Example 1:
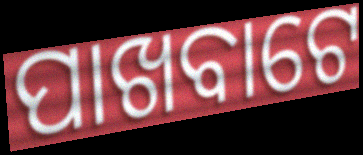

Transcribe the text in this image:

ପାଖବାଟେ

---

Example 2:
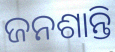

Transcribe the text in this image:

ଜନଶାନ୍ତି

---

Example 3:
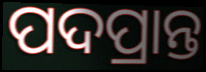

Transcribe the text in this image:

ପଦପ୍ରାନ୍ତ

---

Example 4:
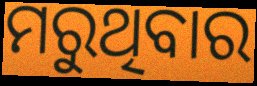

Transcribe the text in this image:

ମରୁଥିବାର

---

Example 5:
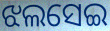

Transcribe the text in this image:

ଝଲସେଇ